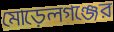
মোড়েলগঞ্জের